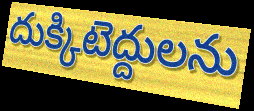
దుక్కిటెద్దులను